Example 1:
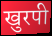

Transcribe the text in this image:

खुरपी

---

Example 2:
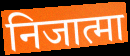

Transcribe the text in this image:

निजात्मा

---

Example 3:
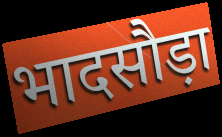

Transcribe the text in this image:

भादसौड़ा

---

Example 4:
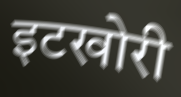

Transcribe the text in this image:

इटखोरी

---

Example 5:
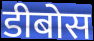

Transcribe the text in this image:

डीबोस